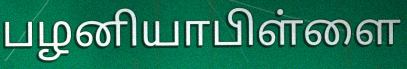
பழனியாபிள்ளை